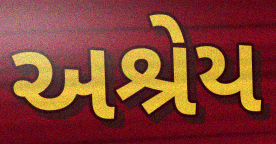
અશ્રેય